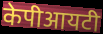
केपीआयटी